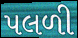
પલળી